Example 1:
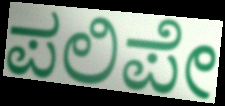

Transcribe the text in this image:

ಪಲಿಪೇ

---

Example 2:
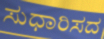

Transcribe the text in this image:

ಸುಧಾರಿಸದ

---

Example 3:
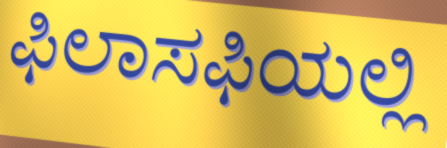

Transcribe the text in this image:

ಫಿಲಾಸಫಿಯಲ್ಲಿ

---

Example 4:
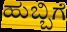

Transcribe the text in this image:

ಹುಬ್ಬಿಗೆ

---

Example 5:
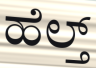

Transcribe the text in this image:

ಹೆಲ್ತ್